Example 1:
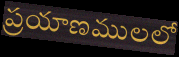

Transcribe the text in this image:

ప్రయాణములలో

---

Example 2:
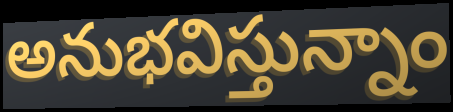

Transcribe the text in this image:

అనుభవిస్తున్నాం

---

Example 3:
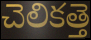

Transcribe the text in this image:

చెలికత్తె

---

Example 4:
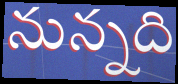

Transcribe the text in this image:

నున్నది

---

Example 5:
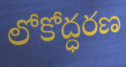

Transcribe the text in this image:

లోకోద్ధరణ